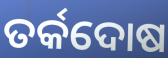
ତର୍କଦୋଷ